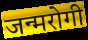
जन्मरोगी